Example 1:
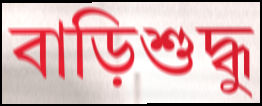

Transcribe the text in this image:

বাড়িশুদ্ধু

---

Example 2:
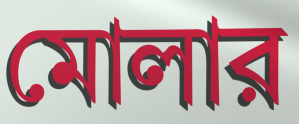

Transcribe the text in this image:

মোলার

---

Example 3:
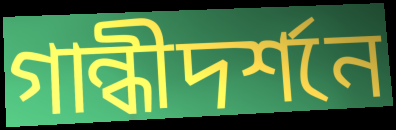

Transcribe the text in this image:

গান্ধীদর্শনে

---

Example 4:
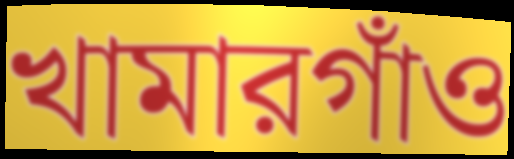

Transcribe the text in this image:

খামারগাঁও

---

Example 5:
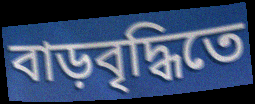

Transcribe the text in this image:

বাড়বৃদ্ধিতে